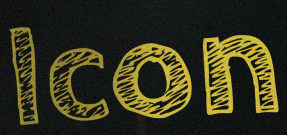
Icon